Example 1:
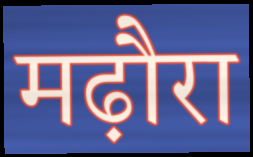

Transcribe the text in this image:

मढ़ौरा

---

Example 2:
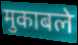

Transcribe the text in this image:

मुकाबले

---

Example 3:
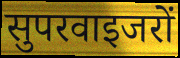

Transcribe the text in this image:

सुपरवाइजरों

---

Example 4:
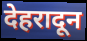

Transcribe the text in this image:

देहरादून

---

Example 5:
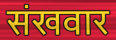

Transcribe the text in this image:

संखवार